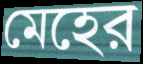
মেহের